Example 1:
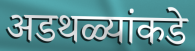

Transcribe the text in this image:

अडथळ्यांकडे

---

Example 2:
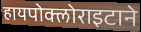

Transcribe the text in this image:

हायपोक्लोराइटाने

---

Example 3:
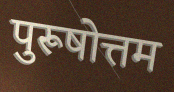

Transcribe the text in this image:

पुरूषोत्तम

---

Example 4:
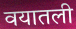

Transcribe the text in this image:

वयातली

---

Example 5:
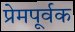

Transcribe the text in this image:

प्रेमपूर्वक